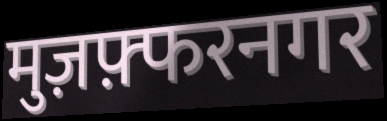
मुज़फ़्फरनगर